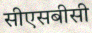
सीएसबीसी